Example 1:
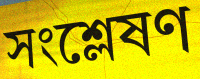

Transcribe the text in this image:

সংশ্লেষণ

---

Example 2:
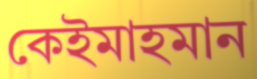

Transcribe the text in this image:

কেইমাহমান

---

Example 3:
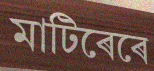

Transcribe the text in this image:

মাটিৰেৰে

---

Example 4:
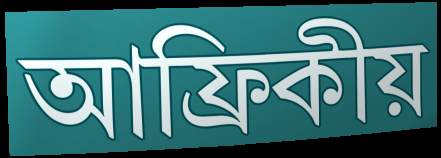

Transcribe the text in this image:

আফ্ৰিকীয়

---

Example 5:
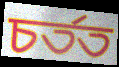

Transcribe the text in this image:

চৰ্তত